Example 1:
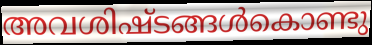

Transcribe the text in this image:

അവശിഷ്ടങ്ങൾകൊണ്ടു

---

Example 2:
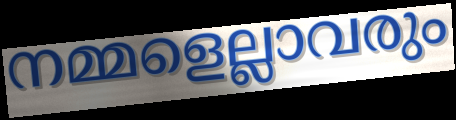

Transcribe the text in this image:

നമ്മളെല്ലാവരും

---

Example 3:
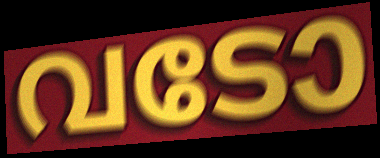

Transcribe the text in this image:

വടോ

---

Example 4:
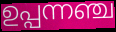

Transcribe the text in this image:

ഉപ്പന്നഞ്ച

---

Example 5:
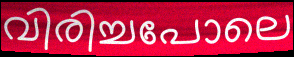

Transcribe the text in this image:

വിരിച്ചപോലെ